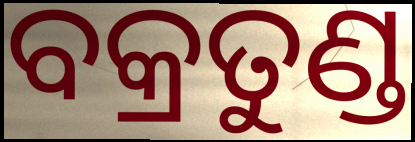
ବକ୍ରତୁଣ୍ଡ